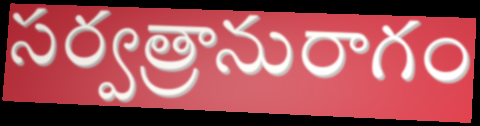
సర్వత్రానురాగం